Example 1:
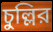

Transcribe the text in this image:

চুল্লির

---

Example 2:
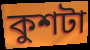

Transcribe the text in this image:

কুশটা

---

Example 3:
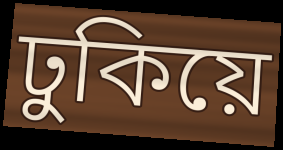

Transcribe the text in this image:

ঢুকিয়ে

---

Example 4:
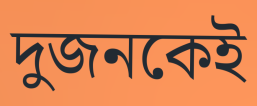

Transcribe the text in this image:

দুজনকেই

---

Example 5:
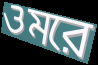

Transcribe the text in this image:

ওমরে